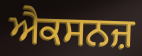
ਐਕਸਨਜ਼